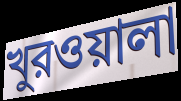
খুরওয়ালা